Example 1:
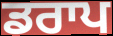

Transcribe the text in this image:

ਡਰਾਪ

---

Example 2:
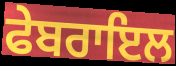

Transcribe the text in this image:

ਫੇਬਰਾਇਲ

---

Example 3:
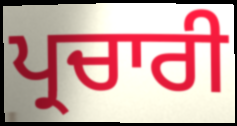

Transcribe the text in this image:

ਪ੍ਰਚਾਰੀ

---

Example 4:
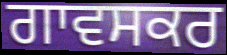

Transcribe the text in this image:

ਗਾਵਸਕਰ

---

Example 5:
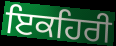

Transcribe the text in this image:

ਇਕਹਿਰੀ